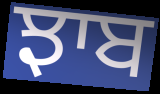
ਝਾਬ